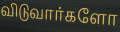
விடுவார்களோ